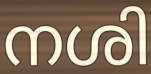
നശി